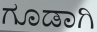
ಗೂಡಾಗಿ